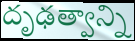
దృఢత్వాన్ని